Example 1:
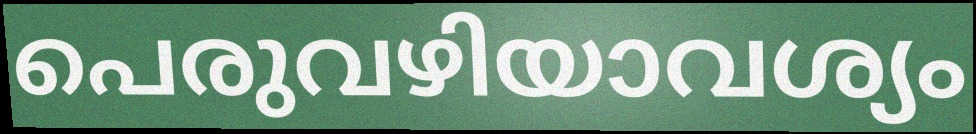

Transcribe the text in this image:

പെരുവഴിയാവശ്യം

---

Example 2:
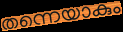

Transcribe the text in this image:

തന്നെയാകും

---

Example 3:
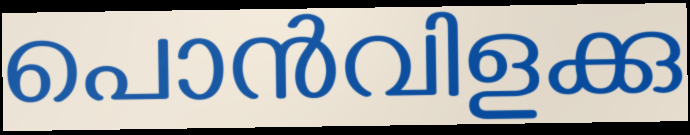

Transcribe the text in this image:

പൊൻവിളക്കു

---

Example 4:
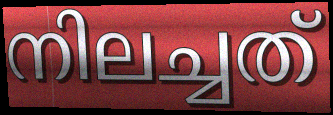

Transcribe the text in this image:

നിലച്ചത്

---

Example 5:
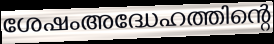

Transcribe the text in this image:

ശേഷംഅദ്ധേഹത്തിന്റെ